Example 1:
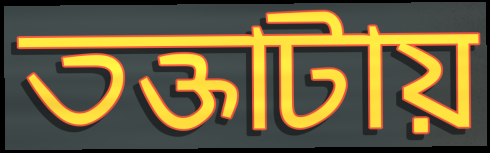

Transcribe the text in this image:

তক্তাটায়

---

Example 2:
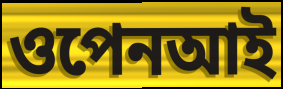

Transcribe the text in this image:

ওপেনআই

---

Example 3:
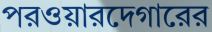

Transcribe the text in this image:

পরওয়ারদেগারের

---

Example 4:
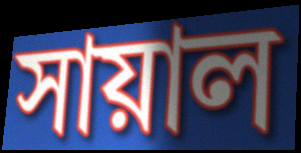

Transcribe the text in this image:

সায়াল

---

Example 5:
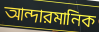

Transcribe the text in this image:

আন্দারমানিক